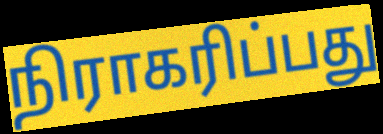
நிராகரிப்பது